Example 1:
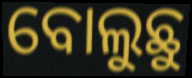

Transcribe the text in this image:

ବୋଲୁଛୁ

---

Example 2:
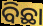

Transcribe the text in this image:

ବିଛା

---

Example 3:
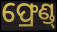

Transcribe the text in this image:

ଫ୍ରେଣ୍ଡ୍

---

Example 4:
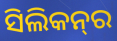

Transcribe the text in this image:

ସିଲିକନ୍‌ର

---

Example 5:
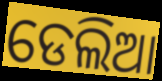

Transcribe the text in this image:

ଡେଲିଆ